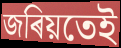
জৰিয়তেই